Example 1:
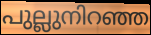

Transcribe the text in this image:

പുല്ലുനിറഞ്ഞ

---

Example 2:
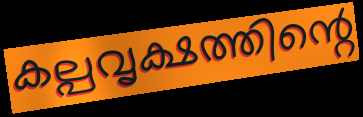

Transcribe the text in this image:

കല്പവൃക്ഷത്തിന്റെ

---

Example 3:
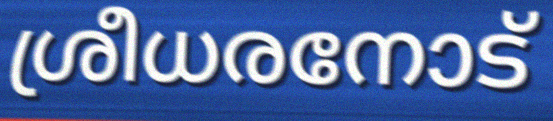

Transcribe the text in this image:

ശ്രീധരനോട്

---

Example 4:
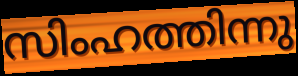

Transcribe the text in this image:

സിംഹത്തിന്നു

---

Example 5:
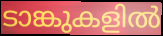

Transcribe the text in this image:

ടാങ്കുകളിൽ